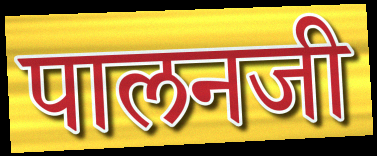
पालनजी